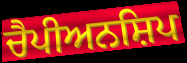
ਚੈਪੀਅਨਸ਼ਿਪ